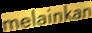
melainkan